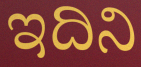
ಇದಿನಿ